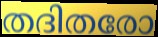
തദിതരോ